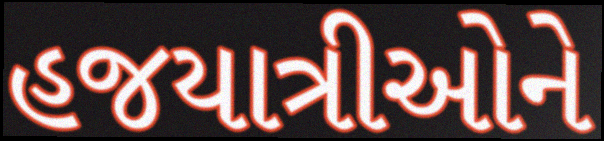
હજયાત્રીઓને